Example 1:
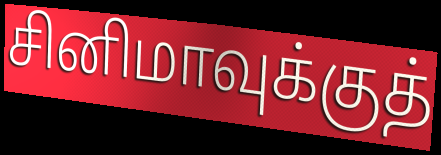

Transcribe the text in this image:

சினிமாவுக்குத்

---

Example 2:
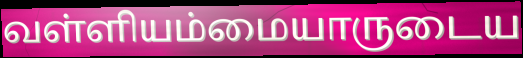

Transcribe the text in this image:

வள்ளியம்மையாருடைய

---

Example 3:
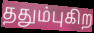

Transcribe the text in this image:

ததும்புகிற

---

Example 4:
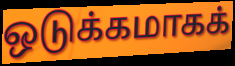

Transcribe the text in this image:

ஒடுக்கமாகக்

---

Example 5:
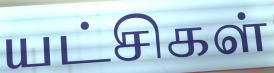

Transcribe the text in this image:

யட்சிகள்